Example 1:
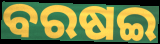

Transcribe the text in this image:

ବରଷଇ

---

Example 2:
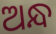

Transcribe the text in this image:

ଅନ୍ଧ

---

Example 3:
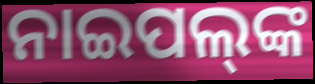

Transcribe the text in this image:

ନାଇପଲ୍‍ଙ୍କ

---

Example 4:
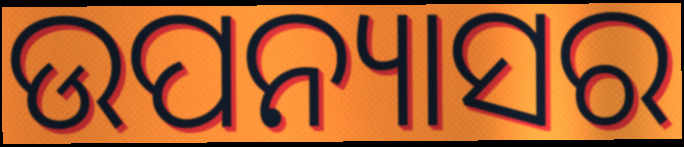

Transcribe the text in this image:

ଉପନ୍ୟାସର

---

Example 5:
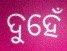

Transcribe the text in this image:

ଦୁହେଁ